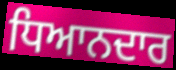
ਧਿਆਨਦਾਰ